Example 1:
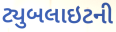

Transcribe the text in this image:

ટ્યુબલાઇટની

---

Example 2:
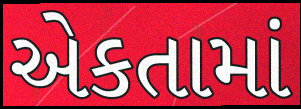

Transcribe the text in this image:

એકતામાં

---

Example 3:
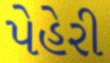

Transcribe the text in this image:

પેહેરી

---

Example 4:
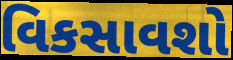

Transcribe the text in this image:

વિકસાવશો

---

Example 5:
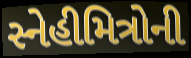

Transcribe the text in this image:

સ્નેહીમિત્રોની